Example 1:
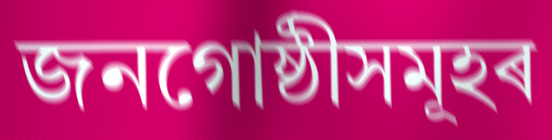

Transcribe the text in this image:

জনগোষ্ঠীসমূহৰ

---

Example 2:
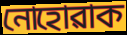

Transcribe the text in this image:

নোহোৱাক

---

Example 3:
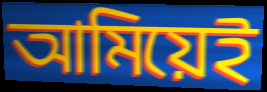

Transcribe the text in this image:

আমিয়েই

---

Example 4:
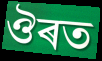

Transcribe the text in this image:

ঔৰত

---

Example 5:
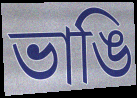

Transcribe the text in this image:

ভাঙি